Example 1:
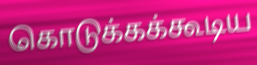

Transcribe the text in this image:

கொடுக்கக்கூடிய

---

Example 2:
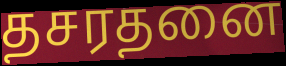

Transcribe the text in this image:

தசரதனை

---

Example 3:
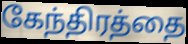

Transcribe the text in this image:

கேந்திரத்தை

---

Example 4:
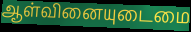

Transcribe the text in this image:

ஆள்வினையுடைமை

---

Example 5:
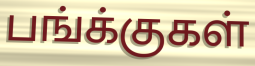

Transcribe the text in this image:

பங்க்குகள்